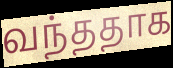
வந்ததாக